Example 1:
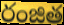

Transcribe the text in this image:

రంజిత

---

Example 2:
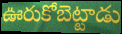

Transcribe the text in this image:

ఊరుకోబెట్టాడు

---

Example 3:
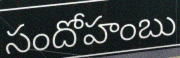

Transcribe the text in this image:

సందోహంబు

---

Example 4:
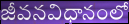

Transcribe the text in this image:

జీవనవిధానంలో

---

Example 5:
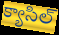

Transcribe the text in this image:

క్యాసిల్